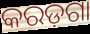
କରଡ଼ଗା